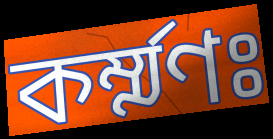
কর্ম্মণঃ